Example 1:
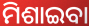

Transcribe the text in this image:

ମିଶାଇବା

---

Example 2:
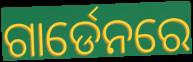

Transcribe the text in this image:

ଗାର୍ଡେନରେ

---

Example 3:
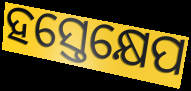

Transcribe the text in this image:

ହସ୍ତେକ୍ଷେପ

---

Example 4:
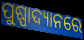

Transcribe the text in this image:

ପୁଷ୍ପାଦ୍ୟାନରେ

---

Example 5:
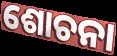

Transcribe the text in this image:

ଶୋଚନା